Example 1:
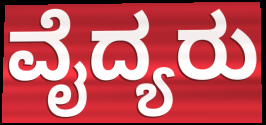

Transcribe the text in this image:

ವೈದ್ಯರು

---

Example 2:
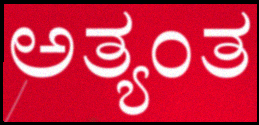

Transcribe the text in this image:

ಅತ್ಯಂತ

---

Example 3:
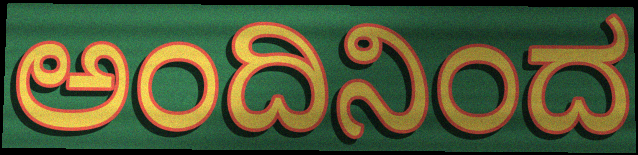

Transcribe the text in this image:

ಅಂದಿನಿಂದ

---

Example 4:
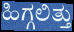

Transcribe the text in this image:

ಹಿಗ್ಗಲಿತ್ತು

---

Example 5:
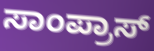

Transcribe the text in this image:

ಸಾಂಪ್ರಾಸ್